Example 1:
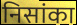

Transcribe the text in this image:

निसांका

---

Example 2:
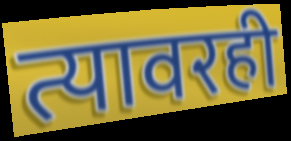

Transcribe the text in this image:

त्यावरही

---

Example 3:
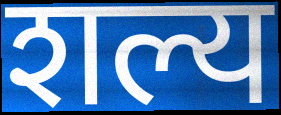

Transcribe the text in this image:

शल्‍य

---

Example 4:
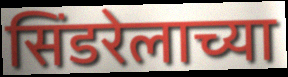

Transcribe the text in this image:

सिंडरेलाच्या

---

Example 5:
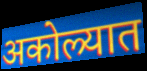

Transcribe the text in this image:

अकोल्यात